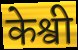
केश्वी